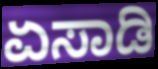
ಏಸಾಡಿ